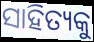
ସାହିତ୍ୟକୁ